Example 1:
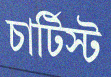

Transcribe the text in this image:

চার্টিস্ট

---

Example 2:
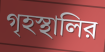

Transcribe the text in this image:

গৃহস্থালির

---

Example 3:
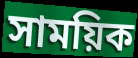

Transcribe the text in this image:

সাময়িক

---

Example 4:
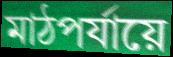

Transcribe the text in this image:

মাঠপর্যায়ে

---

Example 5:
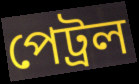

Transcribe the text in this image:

পেট্রল